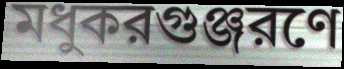
মধুকরগুঞ্জরণে